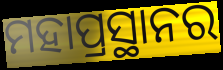
ମହାପ୍ରସ୍ଥାନର